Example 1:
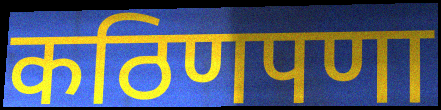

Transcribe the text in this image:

कठिणपणा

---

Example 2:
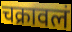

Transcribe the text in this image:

चक्रावलं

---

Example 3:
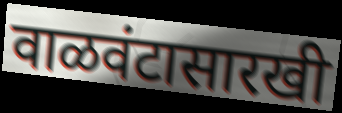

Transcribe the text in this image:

वाळवंटासारखी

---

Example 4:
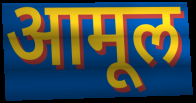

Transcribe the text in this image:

आमूल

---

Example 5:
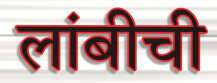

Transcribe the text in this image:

लांबीची